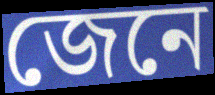
জেনে